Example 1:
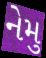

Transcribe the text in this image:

નેમુ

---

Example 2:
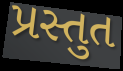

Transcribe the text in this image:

પ્રસ્તુત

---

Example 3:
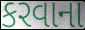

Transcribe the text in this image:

કરવાના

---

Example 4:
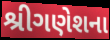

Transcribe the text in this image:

શ્રીગણેશના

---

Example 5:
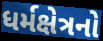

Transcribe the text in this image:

ધર્મક્ષેત્રનો